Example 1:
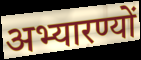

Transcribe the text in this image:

अभ्यारण्यों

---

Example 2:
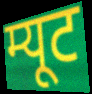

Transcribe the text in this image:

म्यूट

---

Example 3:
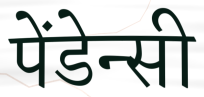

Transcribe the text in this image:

पेंडेन्सी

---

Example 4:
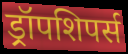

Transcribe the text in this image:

ड्रॉपशिपर्स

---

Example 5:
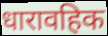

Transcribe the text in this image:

धारावहिक